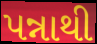
પન્નાથી